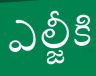
ఎల్జీకి